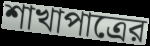
শাখাপাত্রের